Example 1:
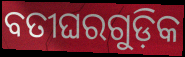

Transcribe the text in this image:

ବତୀଘରଗୁଡ଼ିକ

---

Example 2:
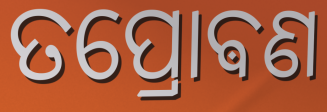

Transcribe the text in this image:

ତପ୍ରୋଵଣ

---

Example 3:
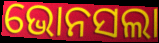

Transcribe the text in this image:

ଭୋନସଲା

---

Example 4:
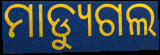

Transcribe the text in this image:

ମାଡ୍ୟୁଗଲ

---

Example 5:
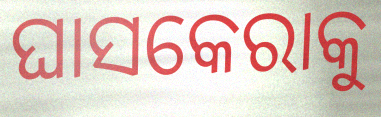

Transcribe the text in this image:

ଘାସକେରାକୁ